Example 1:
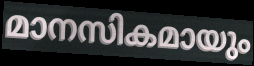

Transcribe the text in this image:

മാനസികമായും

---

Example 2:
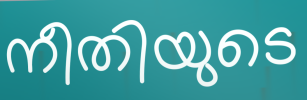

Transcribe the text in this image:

നീതിയുടെ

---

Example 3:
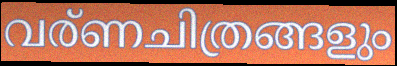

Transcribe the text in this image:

വര്ണചിത്രങ്ങളും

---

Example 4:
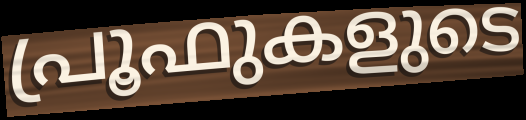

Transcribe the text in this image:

പ്രൂഫുകളുടെ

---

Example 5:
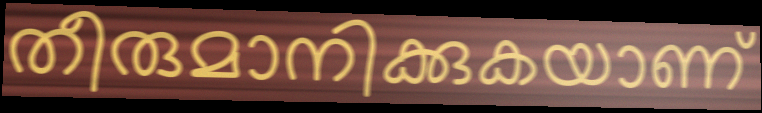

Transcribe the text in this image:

തീരുമാനിക്കുകയാണ്